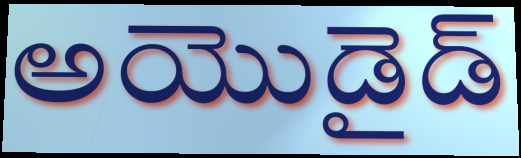
అయొడైడ్